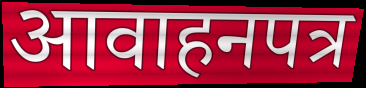
आवाहनपत्र